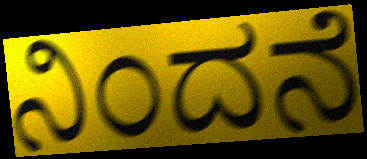
ನಿಂದನೆ